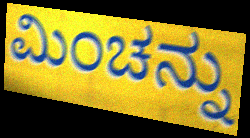
ಮಿಂಚನ್ನು